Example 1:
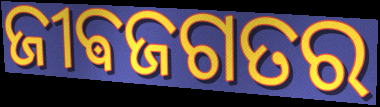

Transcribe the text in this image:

ଜୀଵଜଗତର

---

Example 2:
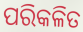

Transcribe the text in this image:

ପରିକଳିତ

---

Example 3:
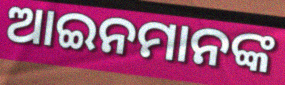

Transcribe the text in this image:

ଆଇନମାନଙ୍କ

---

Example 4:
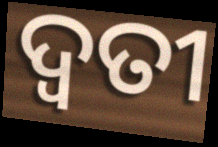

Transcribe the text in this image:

ଦ୍ଵତୀ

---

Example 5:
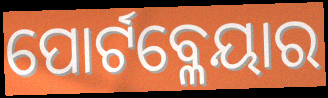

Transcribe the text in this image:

ପୋର୍ଟବ୍ଳେୟାର